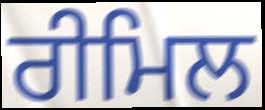
ਰੀਮਿਲ